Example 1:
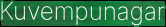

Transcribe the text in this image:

Kuvempunagar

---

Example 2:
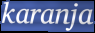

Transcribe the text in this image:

karanja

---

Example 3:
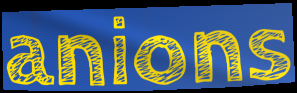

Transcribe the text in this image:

anions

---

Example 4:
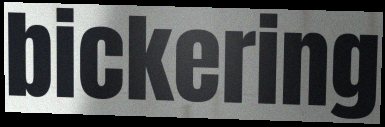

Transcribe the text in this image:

bickering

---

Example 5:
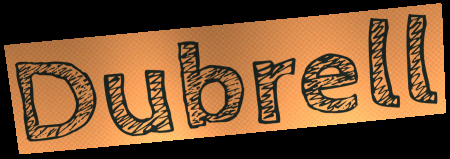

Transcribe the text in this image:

Dubrell